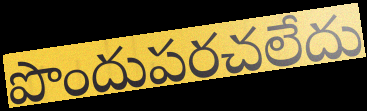
పొందుపరచలేదు